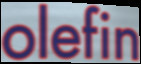
olefin